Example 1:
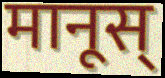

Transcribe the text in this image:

मानूस्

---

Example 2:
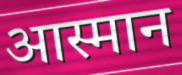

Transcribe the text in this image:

आस्मान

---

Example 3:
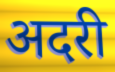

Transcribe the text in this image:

अदरी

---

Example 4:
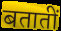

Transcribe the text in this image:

बतातीं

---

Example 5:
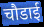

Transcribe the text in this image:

चौडाई